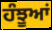
ਹੰਝੂਆਂ